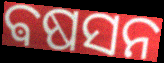
ଵଷସନ